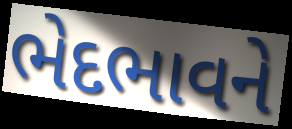
ભેદભાવને